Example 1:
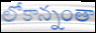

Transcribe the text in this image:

లోకాన్నంతా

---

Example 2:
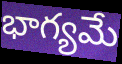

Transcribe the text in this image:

భాగ్యమే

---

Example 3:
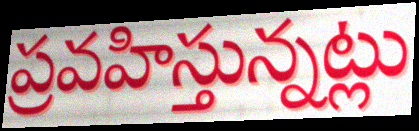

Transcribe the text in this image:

ప్రవహిస్తున్నట్లు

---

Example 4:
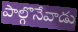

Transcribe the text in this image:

పాల్గొనేవాడు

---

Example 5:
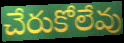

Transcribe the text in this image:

చేరుకోలేవు